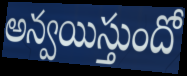
అన్వయిస్తుందో